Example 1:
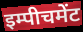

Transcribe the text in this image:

इम्पीचमेंट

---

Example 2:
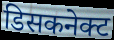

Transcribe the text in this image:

डिसकनेक्ट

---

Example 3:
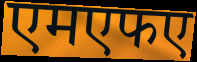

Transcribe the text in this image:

एमएफए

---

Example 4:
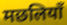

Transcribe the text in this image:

मछलियाँ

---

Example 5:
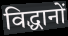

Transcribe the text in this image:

विद्धानों